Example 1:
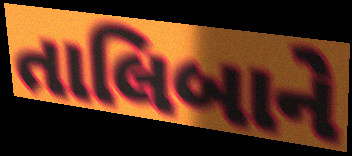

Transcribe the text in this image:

તાલિબાને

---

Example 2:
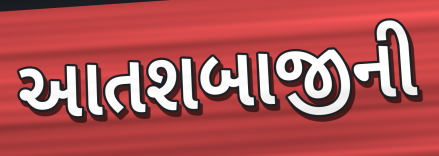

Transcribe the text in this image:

આતશબાજીની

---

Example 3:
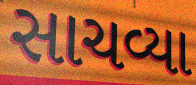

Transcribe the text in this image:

સાચવ્યા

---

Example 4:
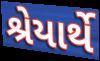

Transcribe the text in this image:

શ્રેયાર્થે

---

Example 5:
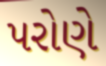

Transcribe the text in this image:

પરોણે